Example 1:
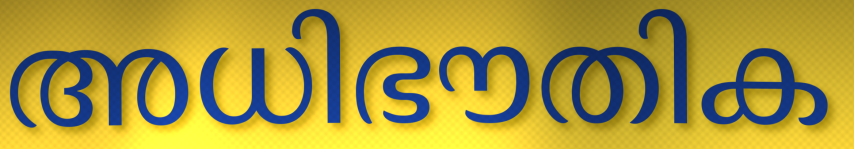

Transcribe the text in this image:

അധിഭൗതിക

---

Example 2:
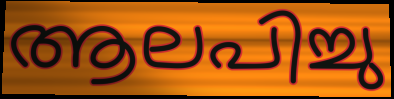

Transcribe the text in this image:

ആലപിച്ചു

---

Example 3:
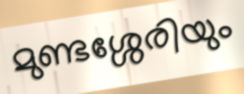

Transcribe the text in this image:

മുണ്ടശ്ശേരിയും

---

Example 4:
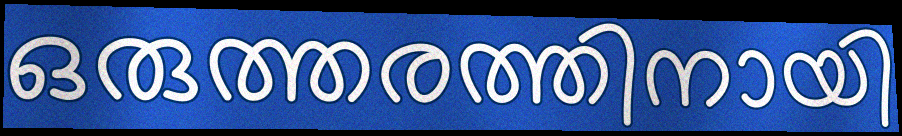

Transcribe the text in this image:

ഒരുത്തരത്തിനായി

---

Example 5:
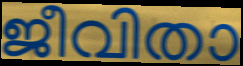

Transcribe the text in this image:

ജീവിതാ